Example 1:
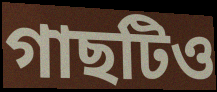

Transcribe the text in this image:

গাছটিও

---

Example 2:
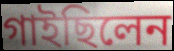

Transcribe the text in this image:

গাইছিলেন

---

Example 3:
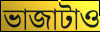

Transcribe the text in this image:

ভাজাটাও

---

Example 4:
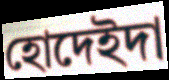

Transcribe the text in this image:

হোদেইদা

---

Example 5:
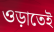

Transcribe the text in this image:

ওড়াতেই